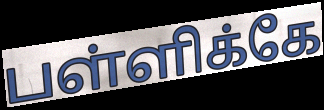
பள்ளிக்கே